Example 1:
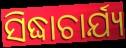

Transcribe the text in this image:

ସିଦ୍ଧାଚାର୍ଯ୍ୟ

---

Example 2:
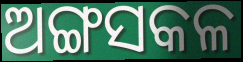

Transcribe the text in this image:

ଅଙ୍ଗସକଳ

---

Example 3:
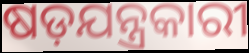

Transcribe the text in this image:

ଷଡ଼ଯନ୍ତ୍ରକାରୀ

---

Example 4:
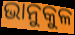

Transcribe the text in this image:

ଭାନୁକୁଳ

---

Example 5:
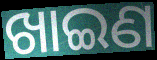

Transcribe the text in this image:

ଖାଇଣ